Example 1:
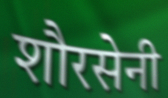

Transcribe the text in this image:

शौरसेनी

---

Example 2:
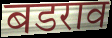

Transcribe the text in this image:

बडराव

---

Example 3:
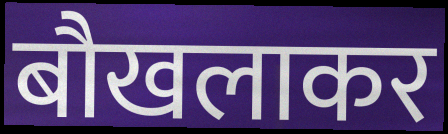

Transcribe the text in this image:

बौखलाकर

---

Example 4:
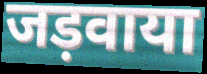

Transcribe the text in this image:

जड़वाया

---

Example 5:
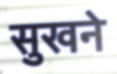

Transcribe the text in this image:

सुखने